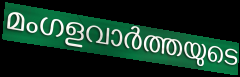
മംഗളവാർത്തയുടെ